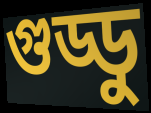
গুড্ডু